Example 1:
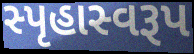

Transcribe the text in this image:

સ્પૃહાસ્વરૂપ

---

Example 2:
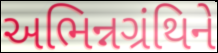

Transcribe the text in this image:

અભિન્નગ્રંથિને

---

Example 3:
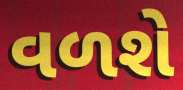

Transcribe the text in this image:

વળશે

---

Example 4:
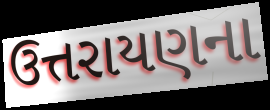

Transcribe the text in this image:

ઉત્તરાયણના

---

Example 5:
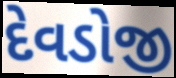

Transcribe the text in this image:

દેવડોજી